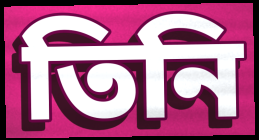
তিনি